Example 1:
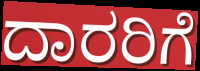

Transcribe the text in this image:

ದಾರರಿಗೆ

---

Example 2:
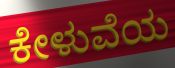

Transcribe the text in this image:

ಕೇಳುವೆಯ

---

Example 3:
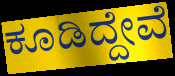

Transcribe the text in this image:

ಕೂಡಿದ್ದೇವೆ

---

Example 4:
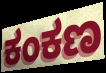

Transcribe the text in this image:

ಕಂಕಣ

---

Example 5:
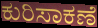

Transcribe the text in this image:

ಕುರಿಸಾಕಣೆ